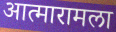
आत्मारामला